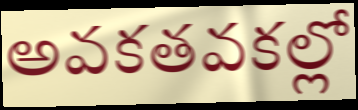
అవకతవకల్లో